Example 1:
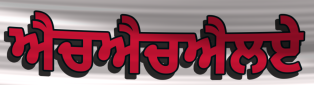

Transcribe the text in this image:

ਐਚਐਚਐਲਏ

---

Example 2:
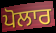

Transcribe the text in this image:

ਪੋਲਾਰ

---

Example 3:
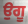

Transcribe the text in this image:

ਉਗੂ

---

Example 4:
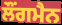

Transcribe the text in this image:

ਲੌਂਗਮੈਨ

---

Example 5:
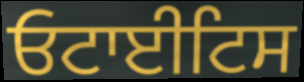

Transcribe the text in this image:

ਓਟਾਈਟਿਸ